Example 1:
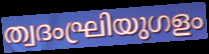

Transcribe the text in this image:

ത്വദംഘ്രിയുഗളം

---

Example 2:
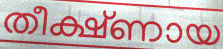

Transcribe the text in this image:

തീക്ഷ്ണായ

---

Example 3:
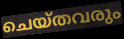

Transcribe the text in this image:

ചെയ്തവരും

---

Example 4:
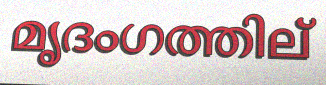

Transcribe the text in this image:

മൃദംഗത്തില്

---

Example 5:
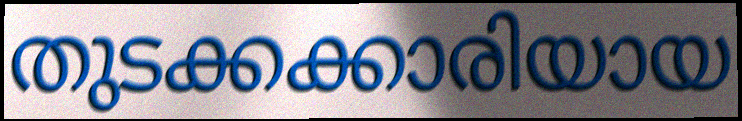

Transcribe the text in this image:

തുടക്കക്കാരിയായ